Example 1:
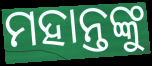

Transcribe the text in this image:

ମହାନ୍ତଙ୍କୁ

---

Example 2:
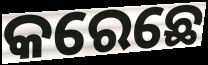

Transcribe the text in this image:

କରେଛେ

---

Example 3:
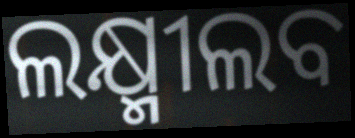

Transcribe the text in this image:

ଲକ୍ଷ୍ମୀଲବ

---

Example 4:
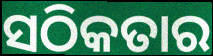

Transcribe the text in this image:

ସଠିକତାର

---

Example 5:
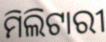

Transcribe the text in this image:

ମିଲିଟାରୀ